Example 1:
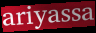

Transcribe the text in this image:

ariyassa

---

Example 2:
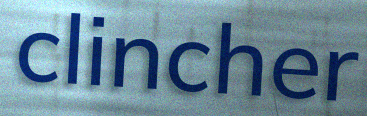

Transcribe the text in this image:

clincher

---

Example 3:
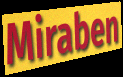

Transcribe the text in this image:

Miraben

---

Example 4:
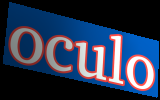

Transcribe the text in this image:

oculo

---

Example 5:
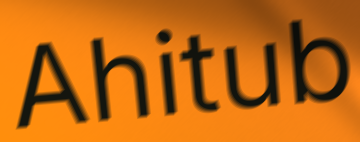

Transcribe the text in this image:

Ahitub